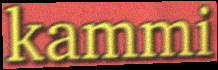
kammi